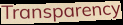
Transparency